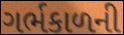
ગર્ભકાળની